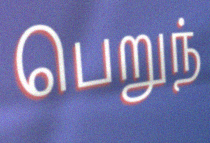
பெறுந்